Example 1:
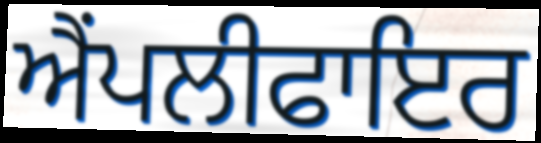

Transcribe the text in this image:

ਐਂਪਲੀਫਾਇਰ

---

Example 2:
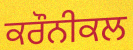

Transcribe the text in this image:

ਕਰੌਨੀਕਲ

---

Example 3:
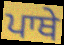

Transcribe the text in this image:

ਪਾਥੇ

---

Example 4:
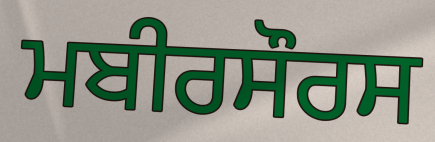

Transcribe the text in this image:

ਮਬੀਰਸੌਰਸ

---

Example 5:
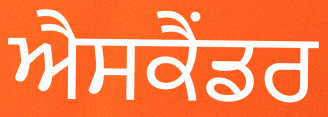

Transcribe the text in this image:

ਐਸਕੈਂਡਰ